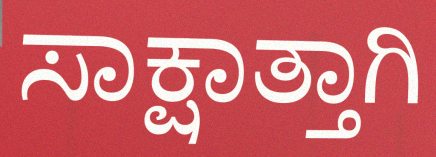
ಸಾಕ್ಷಾತ್ತಾಗಿ